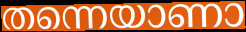
തന്നെയാണാ